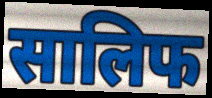
सालिफ